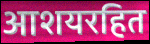
आशयरहित